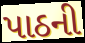
પાઠની